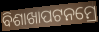
ବିଶାଖାପଟନମ୍ରେ